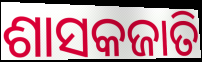
ଶାସକଜାତି